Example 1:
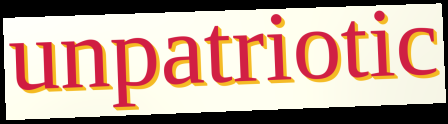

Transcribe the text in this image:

unpatriotic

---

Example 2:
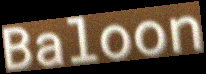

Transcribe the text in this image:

Baloon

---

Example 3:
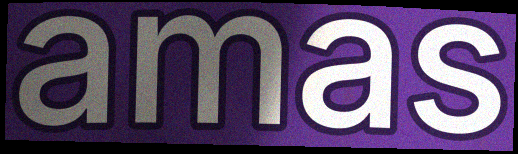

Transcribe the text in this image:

amas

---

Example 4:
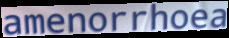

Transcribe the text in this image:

amenorrhoea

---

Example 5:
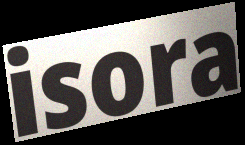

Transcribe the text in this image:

isora